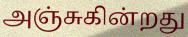
அஞ்சுகின்றது